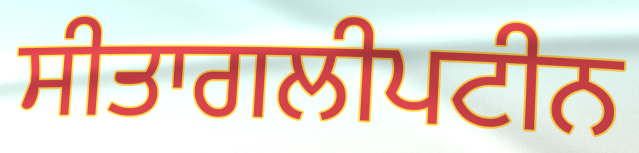
ਸੀਤਾਗਲੀਪਟੀਨ